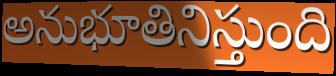
అనుభూతినిస్తుంది